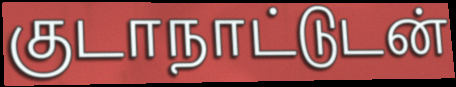
குடாநாட்டுடன்